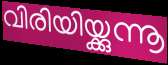
വിരിയിയ്ക്കുന്നൂ